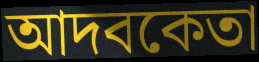
আদবকেতা